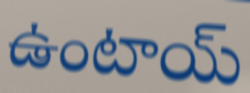
ఉంటాయ్